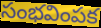
సంభవింపక